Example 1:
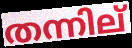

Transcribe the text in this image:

തന്നില്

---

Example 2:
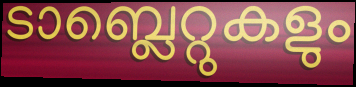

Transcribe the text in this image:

ടാബ്ലെറ്റുകളും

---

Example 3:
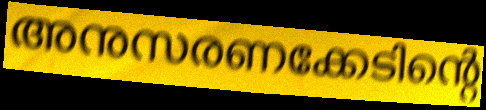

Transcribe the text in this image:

അനുസരണക്കേടിന്റെ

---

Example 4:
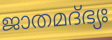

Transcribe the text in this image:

ജാതമദ്ഭ്യഃ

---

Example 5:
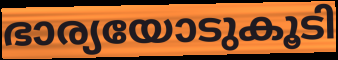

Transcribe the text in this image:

ഭാര്യയോടുകൂടി